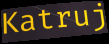
Katruj